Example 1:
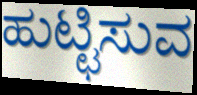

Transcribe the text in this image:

ಹುಟ್ಟಿಸುವ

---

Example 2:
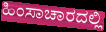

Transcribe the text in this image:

ಹಿಂಸಾಚಾರದಲ್ಲಿ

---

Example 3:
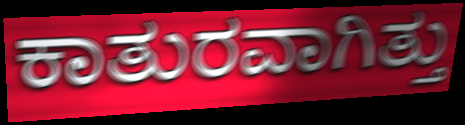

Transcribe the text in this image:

ಕಾತುರವಾಗಿತ್ತು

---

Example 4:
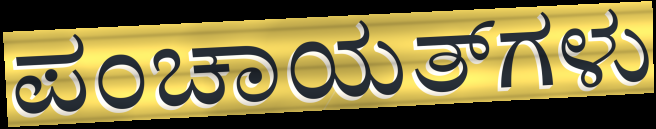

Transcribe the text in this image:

ಪಂಚಾಯತ್‌ಗಳು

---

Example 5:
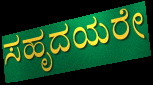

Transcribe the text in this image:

ಸಹೃದಯರೇ